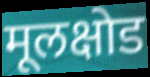
मूलक्षोड